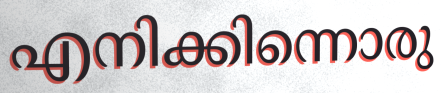
എനിക്കിന്നൊരു